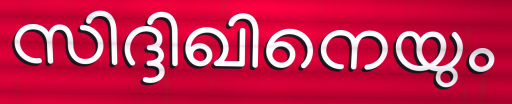
സിദ്ദിഖിനെയും